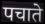
पचाते